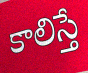
కాలిస్తే